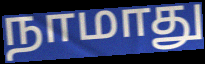
நாமாது